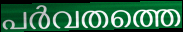
പർവതത്തെ